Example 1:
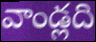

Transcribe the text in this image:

వాండ్లది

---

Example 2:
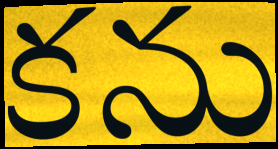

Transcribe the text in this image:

కను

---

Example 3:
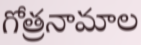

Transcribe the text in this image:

గోత్రనామాల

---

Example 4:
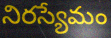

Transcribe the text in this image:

నిరస్యేమం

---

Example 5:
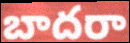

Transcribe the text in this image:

బాదరా